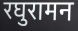
रघुरामन